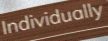
Individually